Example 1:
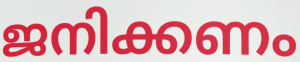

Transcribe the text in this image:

ജനിക്കണം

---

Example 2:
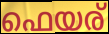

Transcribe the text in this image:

ഫെയര്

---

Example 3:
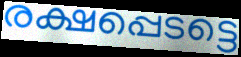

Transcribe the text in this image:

രക്ഷപ്പെടട്ടെ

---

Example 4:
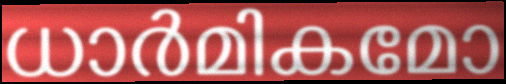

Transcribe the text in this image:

ധാർമികമോ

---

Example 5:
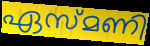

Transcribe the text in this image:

ഏസ്മണി